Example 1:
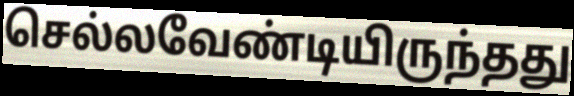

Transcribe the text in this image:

செல்லவேண்டியிருந்தது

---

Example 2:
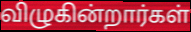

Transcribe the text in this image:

விழுகின்றார்கள்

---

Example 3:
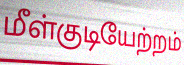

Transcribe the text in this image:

மீள்குடியேற்றம்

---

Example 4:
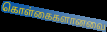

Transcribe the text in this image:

கொள்கைகளானவை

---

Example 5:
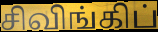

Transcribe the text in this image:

சிவிங்கிப்